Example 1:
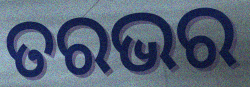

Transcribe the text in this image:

ତରଭର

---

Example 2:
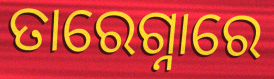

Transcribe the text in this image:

ତାରେଗ୍ନାରେ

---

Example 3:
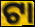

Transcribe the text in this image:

ଟା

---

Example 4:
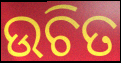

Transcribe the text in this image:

ଉଚିତ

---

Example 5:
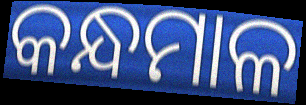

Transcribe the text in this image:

କନ୍ଧମାଳ